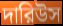
দারিউস